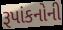
રૂપાંકનોની